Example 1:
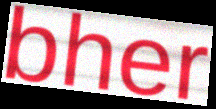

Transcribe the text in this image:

bher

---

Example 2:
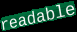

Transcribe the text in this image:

readable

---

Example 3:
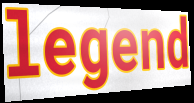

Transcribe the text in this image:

legend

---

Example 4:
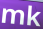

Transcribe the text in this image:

mk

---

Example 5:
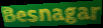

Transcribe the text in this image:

Besnagar